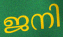
ജനി